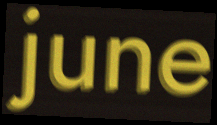
june